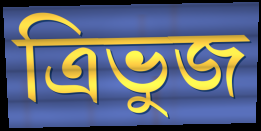
ত্রিভুজ